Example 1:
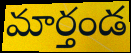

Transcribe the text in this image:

మార్తండ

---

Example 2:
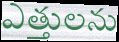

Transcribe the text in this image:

ఎత్తులను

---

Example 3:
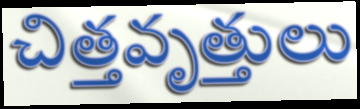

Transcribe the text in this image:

చిత్తవృత్తులు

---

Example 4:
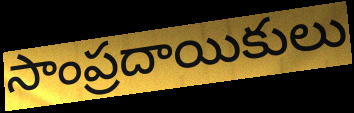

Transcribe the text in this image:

సాంప్రదాయికులు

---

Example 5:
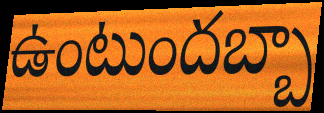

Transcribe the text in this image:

ఉంటుందబ్బా